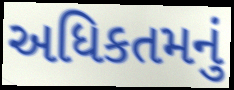
અધિકતમનું